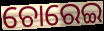
ଚୋରେଇ